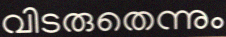
വിടരുതെന്നും